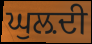
ਘੁਲ਼ਦੀ